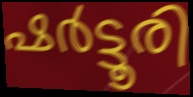
ഷർട്ടൂരി